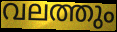
വലത്തും